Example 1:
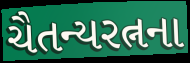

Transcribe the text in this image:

ચૈતન્યરત્નના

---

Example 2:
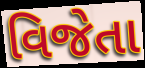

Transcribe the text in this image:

વિજેતા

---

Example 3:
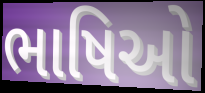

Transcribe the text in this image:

ભાષિઓ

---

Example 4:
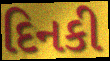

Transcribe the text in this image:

દિનકી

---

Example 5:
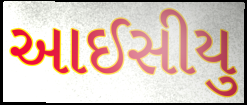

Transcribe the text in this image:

આઈસીયુ